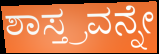
ಶಾಸ್ತ್ರವನ್ನೇ